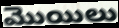
మొయిలు